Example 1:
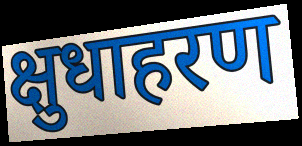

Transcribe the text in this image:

क्षुधाहरण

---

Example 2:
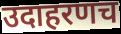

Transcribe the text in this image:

उदाहरणच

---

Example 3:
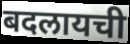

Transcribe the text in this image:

बदलायची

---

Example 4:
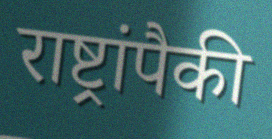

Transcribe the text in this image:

राष्ट्रांपैकी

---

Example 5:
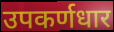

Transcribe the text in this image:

उपकर्णधार